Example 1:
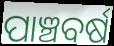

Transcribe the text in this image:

ପାଞ୍ଚବର୍ଷ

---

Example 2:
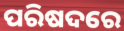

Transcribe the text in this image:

ପରିଷଦରେ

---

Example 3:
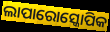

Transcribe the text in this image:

ଲାପାରୋସ୍କୋପିକ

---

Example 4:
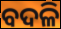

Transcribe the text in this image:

ବଦଳି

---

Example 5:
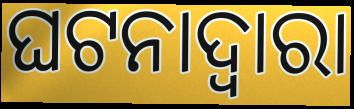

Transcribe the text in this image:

ଘଟନାଦ୍ୱାରା